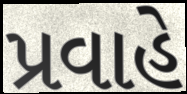
પ્રવાહે